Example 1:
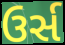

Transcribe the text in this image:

ઉર્સ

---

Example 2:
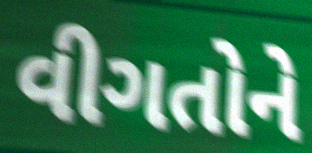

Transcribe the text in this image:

વીગતોને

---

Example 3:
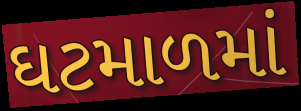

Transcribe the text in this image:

ઘટમાળમાં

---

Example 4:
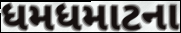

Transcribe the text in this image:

ધમધમાટના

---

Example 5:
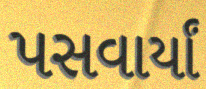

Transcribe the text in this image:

પસવાર્યાં